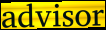
advisor